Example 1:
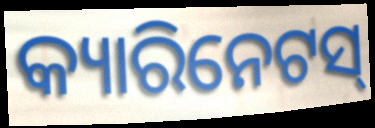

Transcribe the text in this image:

କ୍ୟାରିନେଟସ୍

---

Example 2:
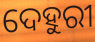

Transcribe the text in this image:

ଦେହୁରୀ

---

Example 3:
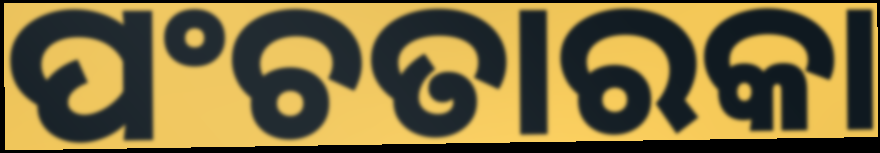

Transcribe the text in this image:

ପଂଚତାରକା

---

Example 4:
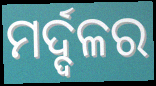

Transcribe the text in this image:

ମର୍ଦ୍ଦଳର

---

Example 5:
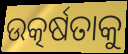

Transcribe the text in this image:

ଉତ୍କର୍ଷତାକୁ